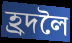
হ্ৰদলৈ